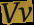
Vv